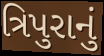
ત્રિપુરાનું